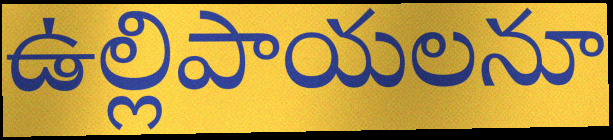
ఉల్లిపాయలనూ